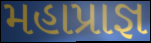
મહાપ્રાજ્ઞ